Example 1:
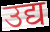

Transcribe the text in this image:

उद्य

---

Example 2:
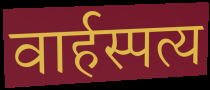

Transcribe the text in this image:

वार्हस्पत्य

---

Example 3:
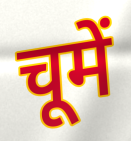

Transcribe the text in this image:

चूमें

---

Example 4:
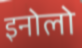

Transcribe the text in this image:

इनोलो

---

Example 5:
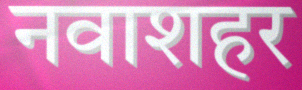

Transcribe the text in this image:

नवाशहर